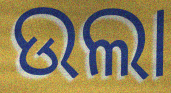
ଉଲା